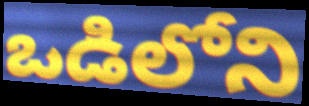
ఒడిలోని